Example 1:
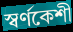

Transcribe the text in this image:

স্বর্ণকেশী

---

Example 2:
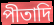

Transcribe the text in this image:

পীতাদি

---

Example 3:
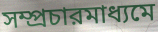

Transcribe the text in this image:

সম্প্রচারমাধ্যমে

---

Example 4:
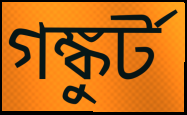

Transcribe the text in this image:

গঙ্কুর্ট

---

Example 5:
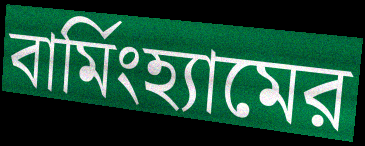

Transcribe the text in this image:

বার্মিংহ্যামের